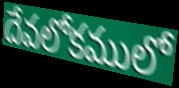
దేవలోకములో